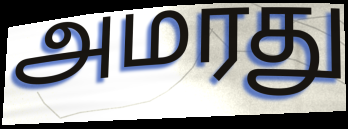
அமரது